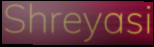
Shreyasi